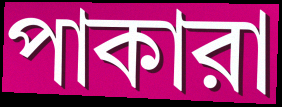
পাকারা